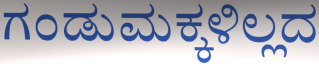
ಗಂಡುಮಕ್ಕಳಿಲ್ಲದ